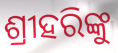
ଶ୍ରୀହରିଙ୍କୁ